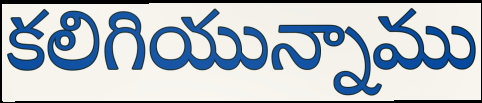
కలిగియున్నాము